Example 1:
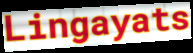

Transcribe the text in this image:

Lingayats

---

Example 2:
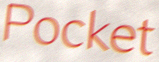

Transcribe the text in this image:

Pocket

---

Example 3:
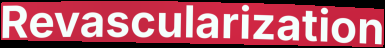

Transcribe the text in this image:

Revascularization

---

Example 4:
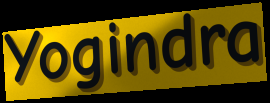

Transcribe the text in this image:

Yogindra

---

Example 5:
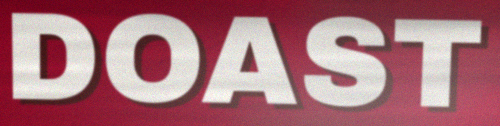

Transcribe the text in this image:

DOAST